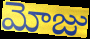
మోజు